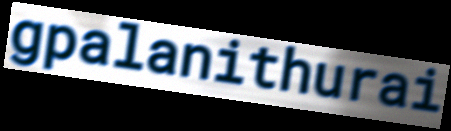
gpalanithurai